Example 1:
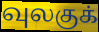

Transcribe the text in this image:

வுலகுக்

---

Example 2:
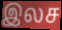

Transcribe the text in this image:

இலச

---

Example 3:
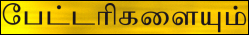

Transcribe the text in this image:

பேட்டரிகளையும்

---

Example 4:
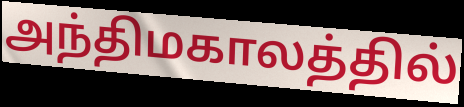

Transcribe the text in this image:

அந்திமகாலத்தில்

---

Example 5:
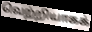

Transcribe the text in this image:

வெற்றியாகக்